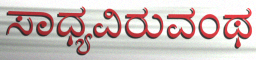
ಸಾಧ್ಯವಿರುವಂಥ